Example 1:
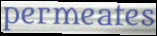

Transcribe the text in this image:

permeates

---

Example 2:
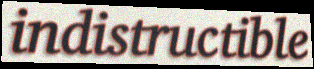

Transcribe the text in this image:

indistructible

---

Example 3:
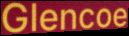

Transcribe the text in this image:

Glencoe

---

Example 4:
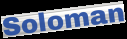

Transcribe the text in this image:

Soloman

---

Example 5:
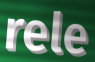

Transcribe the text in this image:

rele